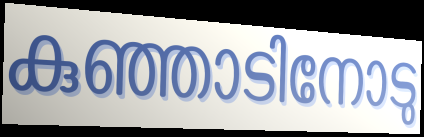
കുഞ്ഞാടിനോടു